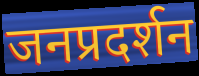
जनप्रदर्शन